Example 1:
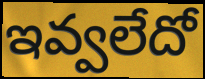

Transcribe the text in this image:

ఇవ్వలేదో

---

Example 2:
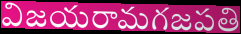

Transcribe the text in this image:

విజయరామగజపతి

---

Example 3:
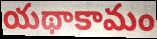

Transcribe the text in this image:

యథాకామం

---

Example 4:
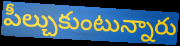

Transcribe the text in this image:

పీల్చుకుంటున్నారు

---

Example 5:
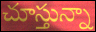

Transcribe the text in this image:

చూస్తున్నా